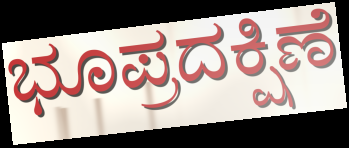
ಭೂಪ್ರದಕ್ಷಿಣೆ